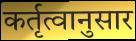
कर्तृत्वानुसार